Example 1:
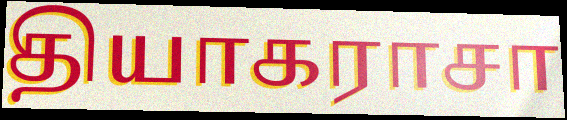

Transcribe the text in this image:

தியாகராசா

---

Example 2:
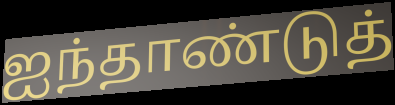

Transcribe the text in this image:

ஐந்தாண்டுத்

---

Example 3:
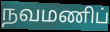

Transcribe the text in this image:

நவமணிப்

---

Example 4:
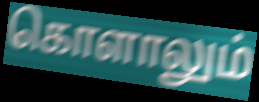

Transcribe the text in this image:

கொளாலும்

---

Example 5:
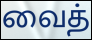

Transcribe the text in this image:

வைத்